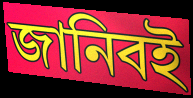
জানিবই